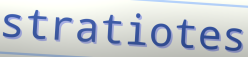
stratiotes